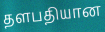
தளபதியான